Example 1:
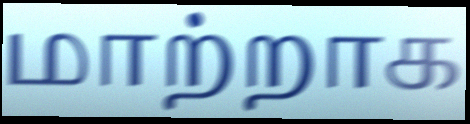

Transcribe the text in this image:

மாற்றாக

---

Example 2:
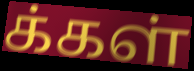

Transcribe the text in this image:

க்கள்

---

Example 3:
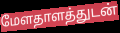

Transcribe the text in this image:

மேளதாளத்துடன்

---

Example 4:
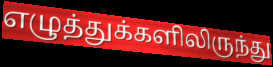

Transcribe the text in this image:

எழுத்துக்களிலிருந்து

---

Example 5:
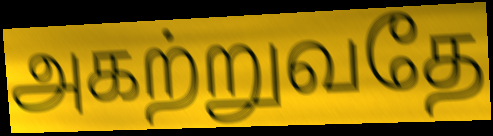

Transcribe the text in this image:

அகற்றுவதே